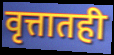
वृत्तातही